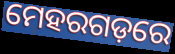
ମେହରଗଡ଼ରେ